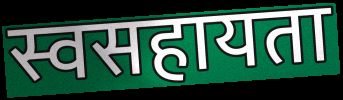
स्वसहायता